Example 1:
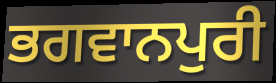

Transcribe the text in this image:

ਭਗਵਾਨਪੁਰੀ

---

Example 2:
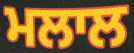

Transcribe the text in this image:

ਮਲਾਲ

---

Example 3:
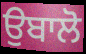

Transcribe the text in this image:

ਉਬਾਲੋ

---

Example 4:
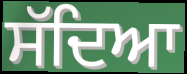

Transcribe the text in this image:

ਸੱਦਿਆ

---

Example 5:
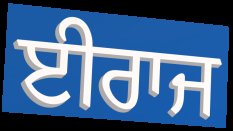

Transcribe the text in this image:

ਈਰਾਜ